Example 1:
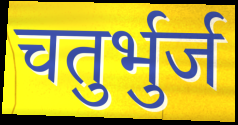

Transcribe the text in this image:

चतुर्भुर्ज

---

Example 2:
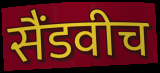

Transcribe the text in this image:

सैंडवीच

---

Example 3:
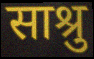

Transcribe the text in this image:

साश्रु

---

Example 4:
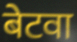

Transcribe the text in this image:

बेटवा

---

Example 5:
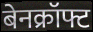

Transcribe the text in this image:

बेनक्रॉफ्ट